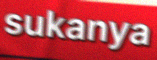
sukanya